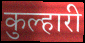
कुल्हारी